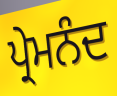
ਪ੍ਰੇਮਨੰਦ